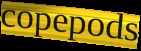
copepods